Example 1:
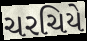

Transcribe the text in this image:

ચરચિયે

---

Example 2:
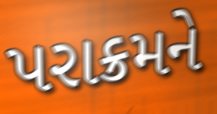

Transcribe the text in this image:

પરાક્રમને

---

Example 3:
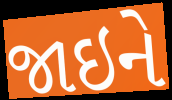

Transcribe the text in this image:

જાઇને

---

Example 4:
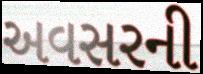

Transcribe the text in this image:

અવસરની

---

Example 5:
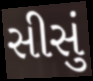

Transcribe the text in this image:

સીસું